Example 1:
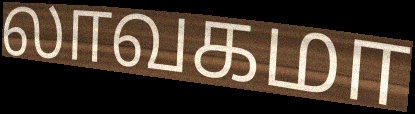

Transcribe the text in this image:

லாவகமா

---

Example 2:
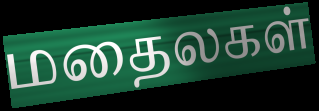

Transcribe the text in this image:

மதைலகள்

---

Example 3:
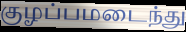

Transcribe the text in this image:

குழப்பமடைந்து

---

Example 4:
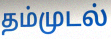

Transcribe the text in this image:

தம்முடல்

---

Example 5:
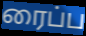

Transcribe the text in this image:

ரைப்ப